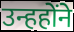
उन्हहोंने